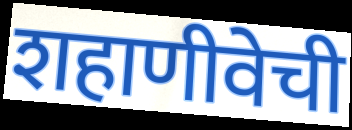
शहाणीवेची